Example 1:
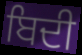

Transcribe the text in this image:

ਬਿਦੀ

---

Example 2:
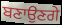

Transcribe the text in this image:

ਬਣਾਉਣਗੇ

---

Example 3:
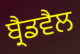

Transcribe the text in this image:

ਬ੍ਰੈਡਵੈਲ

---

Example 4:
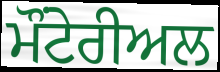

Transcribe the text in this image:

ਮੌਂਟੇਰੀਅਲ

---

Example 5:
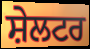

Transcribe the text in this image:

ਸ਼ੇਲਟਰ